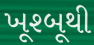
ખૂશ્બૂથી